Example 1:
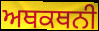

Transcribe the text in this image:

ਅਥਕਥਨੀ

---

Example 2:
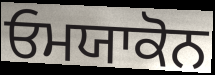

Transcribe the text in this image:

ਓਮਯਾਕੋਨ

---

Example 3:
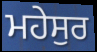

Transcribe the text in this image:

ਮਹੇਸੁਰ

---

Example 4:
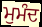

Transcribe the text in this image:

ਮੁਮੰਦ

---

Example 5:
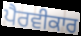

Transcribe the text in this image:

ਪੈਰਵੀਕਾਰ